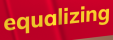
equalizing